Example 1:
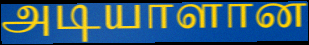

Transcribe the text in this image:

அடியாளான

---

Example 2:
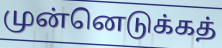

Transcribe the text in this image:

முன்னெடுக்கத்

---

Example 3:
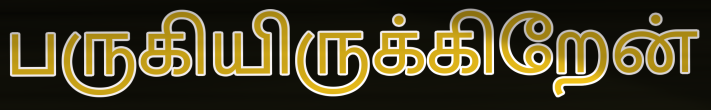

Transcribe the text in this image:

பருகியிருக்கிறேன்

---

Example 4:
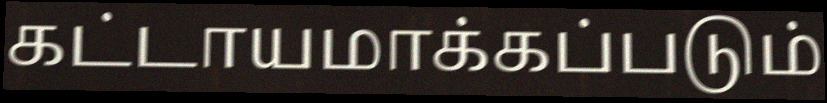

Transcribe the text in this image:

கட்டாயமாக்கப்படும்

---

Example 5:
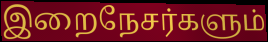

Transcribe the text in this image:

இறைநேசர்களும்